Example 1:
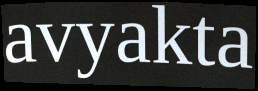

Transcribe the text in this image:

avyakta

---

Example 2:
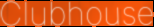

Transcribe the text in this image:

Clubhouse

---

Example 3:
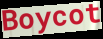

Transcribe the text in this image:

Boycot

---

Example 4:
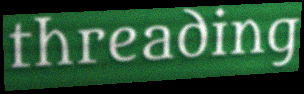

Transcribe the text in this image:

threading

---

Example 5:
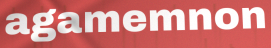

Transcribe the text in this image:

agamemnon